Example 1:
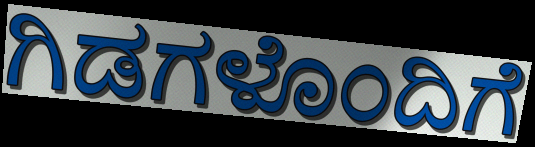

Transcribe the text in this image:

ಗಿಡಗಳೊಂದಿಗೆ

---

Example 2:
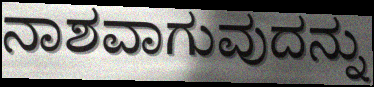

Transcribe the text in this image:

ನಾಶವಾಗುವುದನ್ನು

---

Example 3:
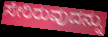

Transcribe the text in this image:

ಸೇರಿರುವುದನ್ನು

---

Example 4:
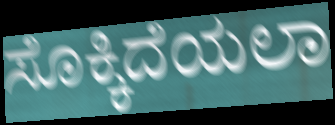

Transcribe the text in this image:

ಸೊಕ್ಕಿದೆಯಲಾ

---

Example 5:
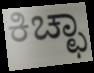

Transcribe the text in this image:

ಕಿಚ್ಛಾ